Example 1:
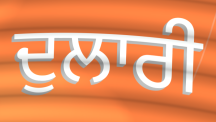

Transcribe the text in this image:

ਦੁਲਾਰੀ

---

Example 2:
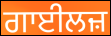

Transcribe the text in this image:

ਗਾਈਲਜ਼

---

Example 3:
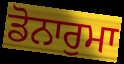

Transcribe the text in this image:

ਡੋਨਾਰੁਮਾ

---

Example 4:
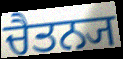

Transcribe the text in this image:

ਚੈਤਨ੍ਯ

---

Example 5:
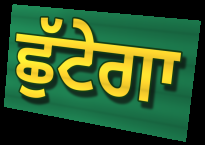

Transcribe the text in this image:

ਛੁੱਟੇਗਾ